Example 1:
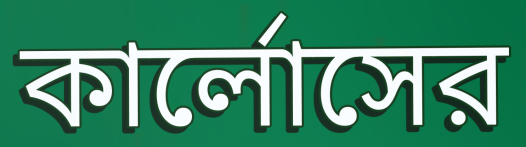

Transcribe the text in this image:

কার্লোসের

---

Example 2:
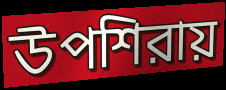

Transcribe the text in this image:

উপশিরায়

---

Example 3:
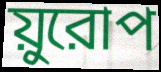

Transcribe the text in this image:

য়ুরোপ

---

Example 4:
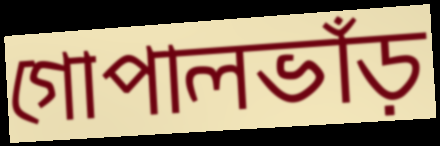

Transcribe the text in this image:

গোপালভাঁড়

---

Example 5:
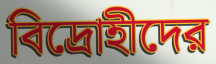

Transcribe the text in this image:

বিদ্রোহীদের